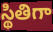
స్థితిగా